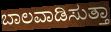
ಬಾಲವಾಡಿಸುತ್ತಾ